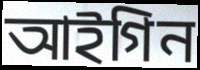
আইগিন